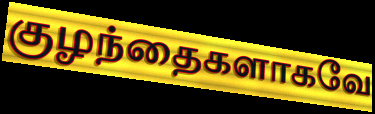
குழந்தைகளாகவே